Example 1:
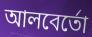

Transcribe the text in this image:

আলবের্তো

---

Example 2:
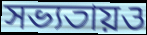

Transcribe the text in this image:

সভ্যতায়ও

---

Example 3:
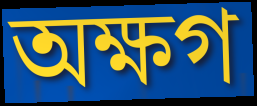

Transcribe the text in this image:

অক্ষগ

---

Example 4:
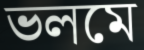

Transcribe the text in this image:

ভলমে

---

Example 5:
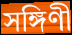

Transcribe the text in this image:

সঙ্গিণী